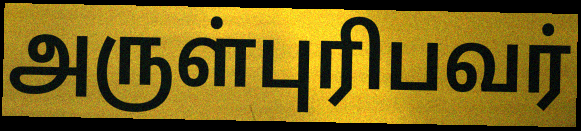
அருள்புரிபவர்